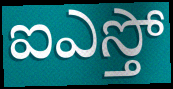
ఐఎస్తో